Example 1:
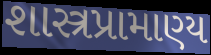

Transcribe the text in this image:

શાસ્ત્રપ્રામાણ્ય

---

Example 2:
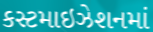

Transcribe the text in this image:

કસ્ટમાઇઝેશનમાં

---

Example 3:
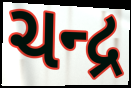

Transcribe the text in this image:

ચન્દ્ર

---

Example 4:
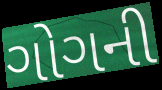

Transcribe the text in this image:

ગોગની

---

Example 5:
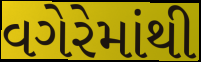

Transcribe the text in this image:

વગેરેમાંથી